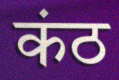
कंठ